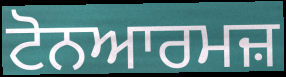
ਟੋਨਆਰਮਜ਼